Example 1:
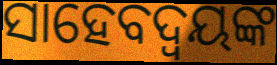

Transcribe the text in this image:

ସାହେବଦ୍ୱୟଙ୍କ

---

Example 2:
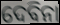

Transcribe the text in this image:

ଦେବିନା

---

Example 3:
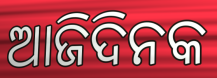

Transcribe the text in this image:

ଆଜିଦିନକ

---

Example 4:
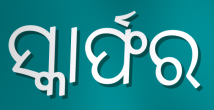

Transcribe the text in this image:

ସ୍କାର୍ଫର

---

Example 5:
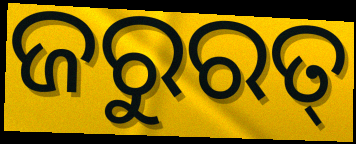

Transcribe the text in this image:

ଜରୁରତ୍